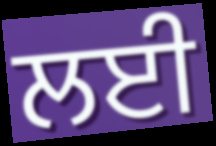
ਲਈ